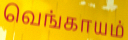
வெங்காயம்